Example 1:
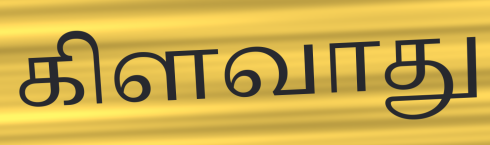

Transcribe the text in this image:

கிளவாது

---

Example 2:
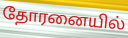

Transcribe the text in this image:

தோரனையில்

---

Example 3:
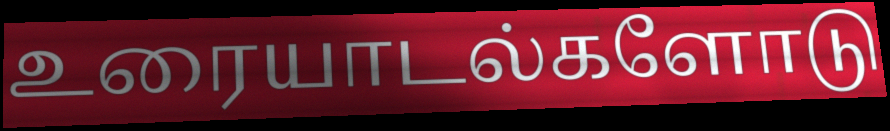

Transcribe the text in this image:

உரையாடல்களோடு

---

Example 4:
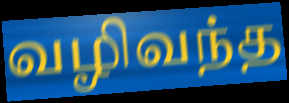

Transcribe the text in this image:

வழிவந்த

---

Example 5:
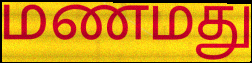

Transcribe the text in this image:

மணமது